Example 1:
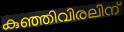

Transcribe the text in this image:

കുഞ്ഞിവിരലിന്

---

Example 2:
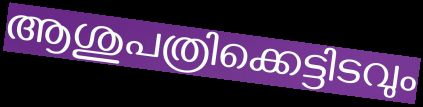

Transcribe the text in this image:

ആശുപത്രിക്കെട്ടിടവും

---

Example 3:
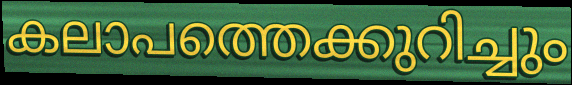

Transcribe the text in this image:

കലാപത്തെക്കുറിച്ചും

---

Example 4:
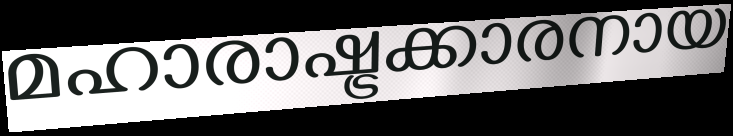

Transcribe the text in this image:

മഹാരാഷ്ട്രക്കാരനായ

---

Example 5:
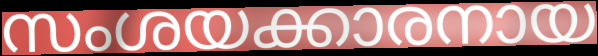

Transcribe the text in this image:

സംശയക്കാരനായ